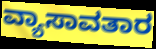
ವ್ಯಾಸಾವತಾರ